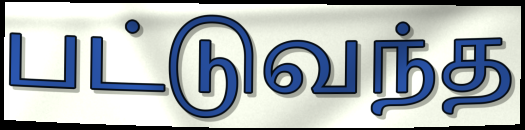
பட்டுவந்த